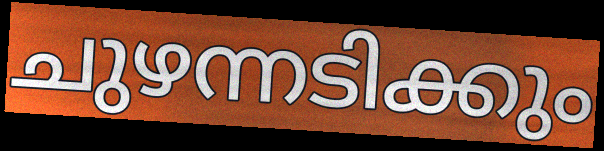
ചുഴന്നടിക്കും